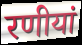
रणीयां